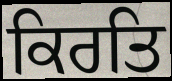
ਕਿਰਤਿ